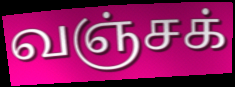
வஞ்சக்